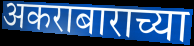
अकराबाराच्या